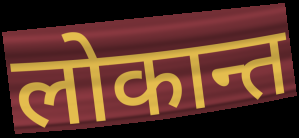
लोकान्त